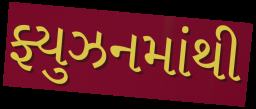
ફ્યુઝનમાંથી